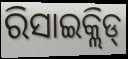
ରିସାଇକ୍ଲିଡ୍